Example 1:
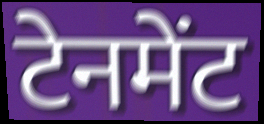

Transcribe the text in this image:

टेनमेंट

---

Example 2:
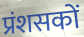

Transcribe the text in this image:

प्रंशसकों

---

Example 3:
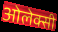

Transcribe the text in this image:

ओलेक्सी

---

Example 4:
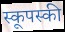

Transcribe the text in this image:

स्कूपस्की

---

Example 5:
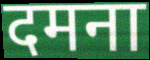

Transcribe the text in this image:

दमना